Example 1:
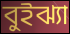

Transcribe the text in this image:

বুইঝ্যা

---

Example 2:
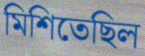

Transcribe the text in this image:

মিশিতেছিল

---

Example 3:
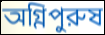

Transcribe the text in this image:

অগ্নিপুরুষ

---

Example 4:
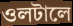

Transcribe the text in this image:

ওলটালে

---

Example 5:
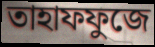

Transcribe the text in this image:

তাহাফফুজে